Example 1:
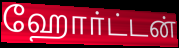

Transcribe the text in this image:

ஹோர்ட்டன்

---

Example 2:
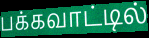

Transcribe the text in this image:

பக்கவாட்டில்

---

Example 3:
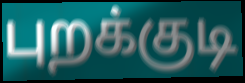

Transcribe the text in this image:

புறக்குடி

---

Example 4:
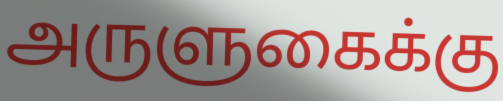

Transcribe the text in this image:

அருளுகைக்கு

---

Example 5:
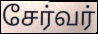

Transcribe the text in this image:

சேர்வர்